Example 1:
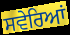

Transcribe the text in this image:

ਸਵੇਰਿਆਂ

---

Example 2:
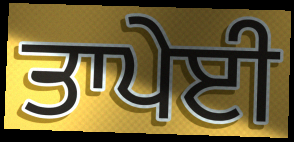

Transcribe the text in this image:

ਤਾਪੇਈ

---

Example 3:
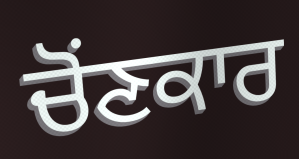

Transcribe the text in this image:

ਚੋਂਣਕਾਰ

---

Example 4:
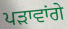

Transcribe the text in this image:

ਪੜਾਵਾਂਗੇ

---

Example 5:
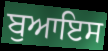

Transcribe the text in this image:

ਬੁਆਇਸ